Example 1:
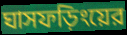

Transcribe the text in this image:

ঘাসফড়িংয়ের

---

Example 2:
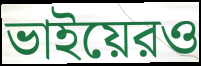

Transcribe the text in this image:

ভাইয়েরও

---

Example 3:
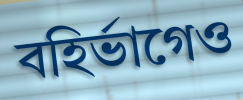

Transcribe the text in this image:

বহির্ভাগেও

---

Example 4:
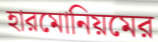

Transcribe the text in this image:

হারমোনিয়মের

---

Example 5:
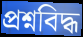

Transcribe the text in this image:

প্রশ্নবিদ্ধ